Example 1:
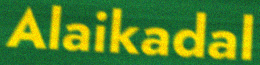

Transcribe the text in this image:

Alaikadal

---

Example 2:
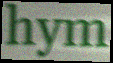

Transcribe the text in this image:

hym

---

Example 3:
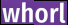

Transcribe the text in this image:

whorl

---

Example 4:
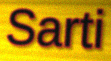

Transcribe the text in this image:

Sarti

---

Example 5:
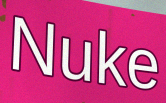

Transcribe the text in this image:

Nuke